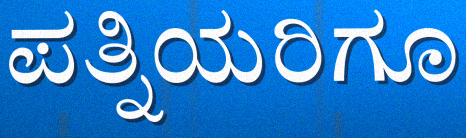
ಪತ್ನಿಯರಿಗೂ